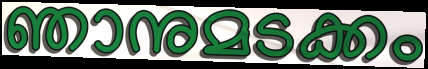
ഞാനുമടക്കം